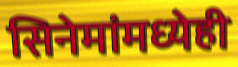
सिनेमांमध्येही